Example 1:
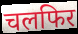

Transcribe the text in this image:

चलफिर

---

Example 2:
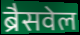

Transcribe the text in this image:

ब्रैसवेल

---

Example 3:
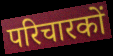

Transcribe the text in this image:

परिचारकों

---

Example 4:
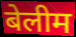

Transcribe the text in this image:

बेलीम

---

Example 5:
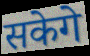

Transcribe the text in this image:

सकेगे